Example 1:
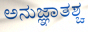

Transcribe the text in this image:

ಅನುಜ್ಞಾತಶ್ಚ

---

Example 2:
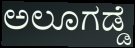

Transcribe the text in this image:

ಅಲೂಗಡ್ಡೆ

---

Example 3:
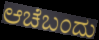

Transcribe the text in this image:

ಆಚೆಬಂದು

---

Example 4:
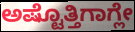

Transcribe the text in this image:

ಅಷ್ಟೊತ್ತಿಗಾಗ್ಲೇ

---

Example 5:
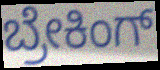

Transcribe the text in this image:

ಬ್ರೇಕಿಂಗ್